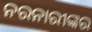
ନରନାରୀଙ୍କର